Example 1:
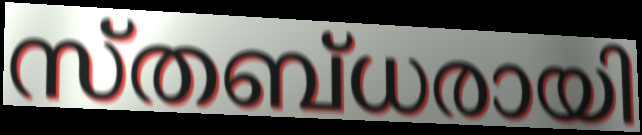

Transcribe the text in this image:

സ്തബ്ധരായി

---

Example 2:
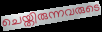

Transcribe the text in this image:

ചെയ്തിരുന്നവരുടെ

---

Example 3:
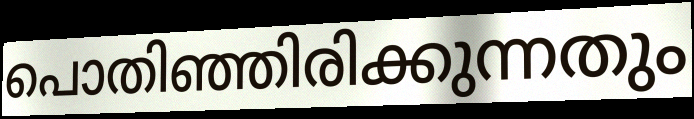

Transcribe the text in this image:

പൊതിഞ്ഞിരിക്കുന്നതും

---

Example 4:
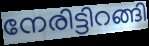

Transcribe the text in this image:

നേരിട്ടിറങ്ങി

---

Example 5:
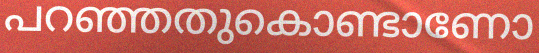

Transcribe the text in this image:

പറഞ്ഞതുകൊണ്ടാണോ